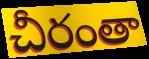
చీరంతా